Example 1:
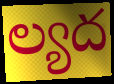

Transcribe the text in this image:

ల్యద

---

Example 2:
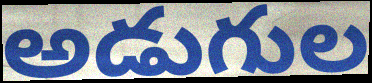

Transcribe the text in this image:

అడుగుల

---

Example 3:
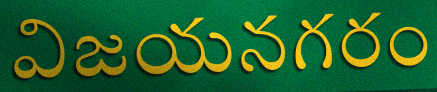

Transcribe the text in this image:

విజయనగరం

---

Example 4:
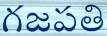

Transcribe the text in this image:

గజపతి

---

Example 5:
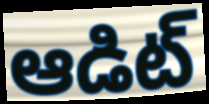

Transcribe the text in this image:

ఆడిట్